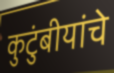
कुटुंबीयांचे